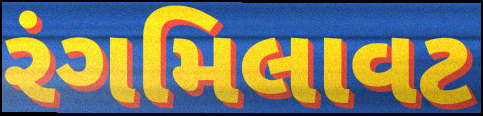
રંગમિલાવટ